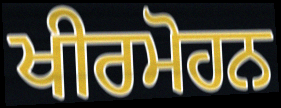
ਖੀਰਮੋਹਨ